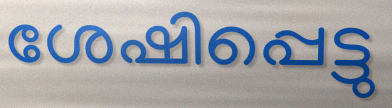
ശേഷിപ്പെട്ടു